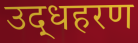
उद्धहरण